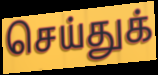
செய்துக்